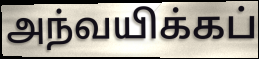
அந்வயிக்கப்